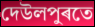
দেউলপুৰতে